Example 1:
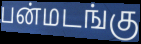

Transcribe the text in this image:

பன்மடங்கு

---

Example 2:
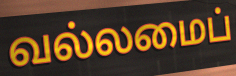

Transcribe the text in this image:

வல்லமைப்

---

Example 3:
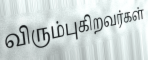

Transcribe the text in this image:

விரும்புகிறவர்கள்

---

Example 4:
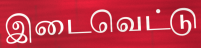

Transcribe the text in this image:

இடைவெட்டு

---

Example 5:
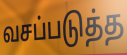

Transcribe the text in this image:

வசப்படுத்த